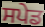
ਸਪੇਡ